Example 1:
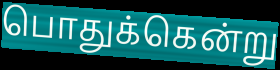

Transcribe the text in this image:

பொதுக்கென்று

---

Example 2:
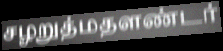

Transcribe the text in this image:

சழறுத்மதளண்டர்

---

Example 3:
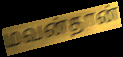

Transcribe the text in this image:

மவன்தான்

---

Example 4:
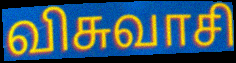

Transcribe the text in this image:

விசுவாசி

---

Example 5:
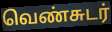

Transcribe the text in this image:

வெண்சுடர்